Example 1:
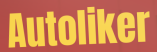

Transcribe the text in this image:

Autoliker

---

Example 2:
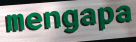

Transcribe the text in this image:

mengapa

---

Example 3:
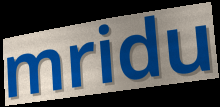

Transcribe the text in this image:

mridu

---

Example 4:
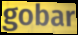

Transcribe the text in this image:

gobar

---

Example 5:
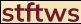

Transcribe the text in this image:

stftws